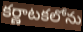
కర్ణాటకలోను